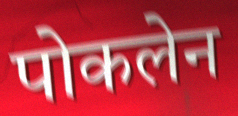
पोकलेन